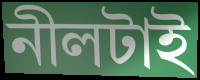
নীলটাই